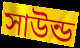
সাউন্ড